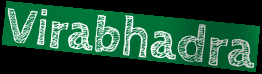
Virabhadra